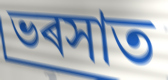
ভৰসাত